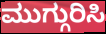
ಮುಗ್ಗುರಿಸಿ